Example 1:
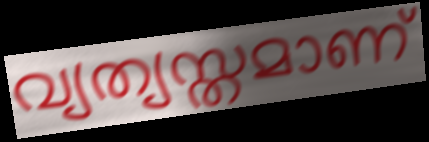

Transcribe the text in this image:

വ്യത്യസ്തമാണ്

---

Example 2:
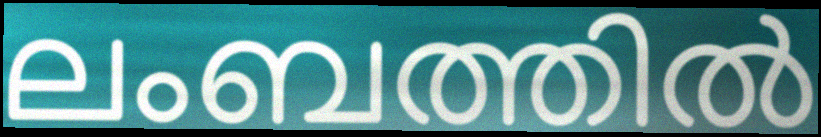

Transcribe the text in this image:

ലംബത്തിൽ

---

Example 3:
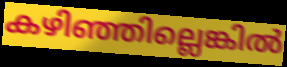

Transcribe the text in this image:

കഴിഞ്ഞില്ലെങ്കിൽ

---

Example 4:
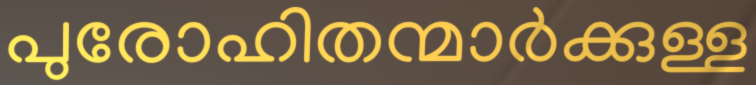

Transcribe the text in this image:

പുരോഹിതന്മാർക്കുള്ള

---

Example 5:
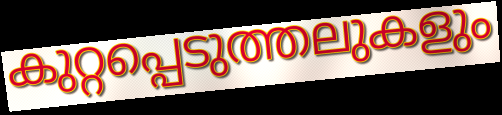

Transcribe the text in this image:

കുറ്റപ്പെടുത്തലുകളും